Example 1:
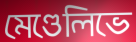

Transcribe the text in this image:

মেণ্ডেলিভে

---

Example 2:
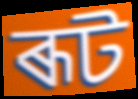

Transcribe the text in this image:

ৰূট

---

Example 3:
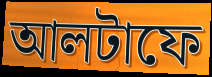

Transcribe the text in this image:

আলটাফে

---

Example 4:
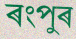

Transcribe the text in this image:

ৰংপুৰ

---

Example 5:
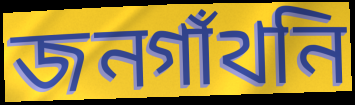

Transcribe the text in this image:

জনগাঁথনি